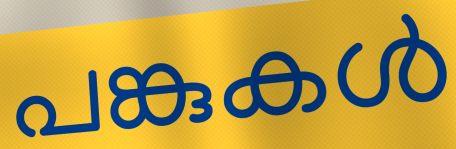
പങ്കുകൾ